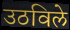
उठविले